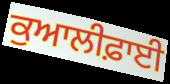
ਕੁਆਲੀਫ਼ਾਈ